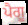
ਪੈਗੂ